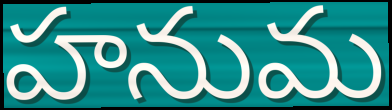
హనుమ